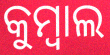
କୁମ୍ବାଲ